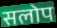
सलोप